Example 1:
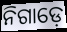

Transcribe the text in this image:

ନିଗାଡ଼େ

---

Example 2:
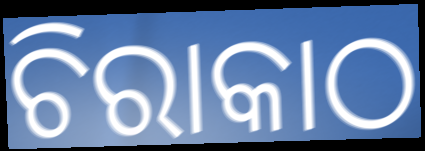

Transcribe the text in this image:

ଚିରାକାଠ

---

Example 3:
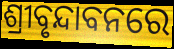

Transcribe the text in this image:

ଶ୍ରୀବୃନ୍ଦାବନରେ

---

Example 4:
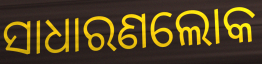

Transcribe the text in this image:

ସାଧାରଣଲୋକ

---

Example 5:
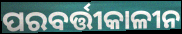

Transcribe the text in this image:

ପରବର୍ତ୍ତୀକାଳୀନ